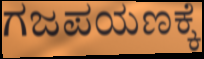
ಗಜಪಯಣಕ್ಕೆ